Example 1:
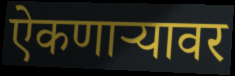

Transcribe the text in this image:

ऐकणार्‍यावर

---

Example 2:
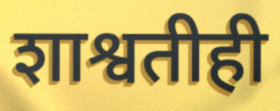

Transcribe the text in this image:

शाश्वतीही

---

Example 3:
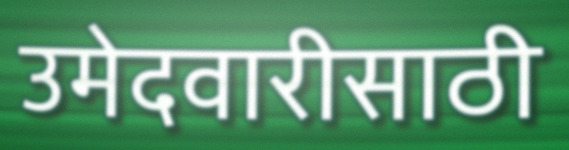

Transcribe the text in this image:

उमेदवारीसाठी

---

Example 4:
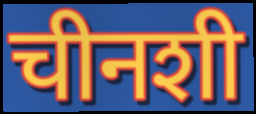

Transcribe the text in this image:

चीनशी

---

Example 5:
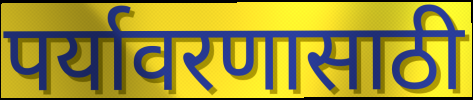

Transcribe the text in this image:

पर्यावरणासाठी